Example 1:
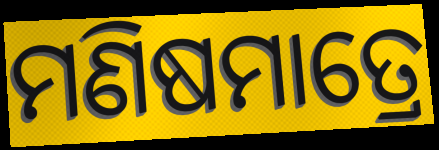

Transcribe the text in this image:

ମଣିଷମାତ୍ରେ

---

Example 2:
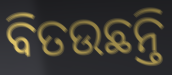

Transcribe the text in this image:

ବିତଉଛନ୍ତି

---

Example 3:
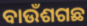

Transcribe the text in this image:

ବାଉଁଶଗଛ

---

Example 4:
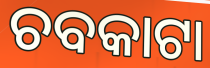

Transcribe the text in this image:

ଚବକାଟା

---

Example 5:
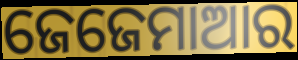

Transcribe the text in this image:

ଜେଜେମାଆର